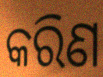
କରିଣ